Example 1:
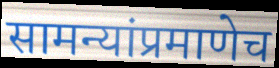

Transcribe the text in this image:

सामन्यांप्रमाणेच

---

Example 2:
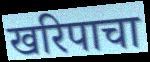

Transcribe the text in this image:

खरिपाचा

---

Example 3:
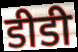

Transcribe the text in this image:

डीडी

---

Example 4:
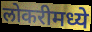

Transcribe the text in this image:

लोकरीमध्ये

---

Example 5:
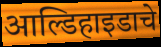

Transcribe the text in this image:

आल्डिहाइडाचे